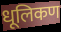
धूलिकण